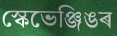
স্কেভেঞ্জিঙৰ